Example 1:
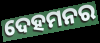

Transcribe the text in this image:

ଦେହମନର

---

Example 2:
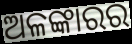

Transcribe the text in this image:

ଅଳଙ୍କାରର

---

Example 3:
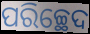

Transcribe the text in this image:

ପରିଚ୍ଛେଦ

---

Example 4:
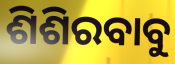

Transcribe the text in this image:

ଶିଶିରବାବୁ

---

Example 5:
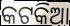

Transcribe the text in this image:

କଟକିଆ